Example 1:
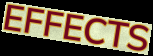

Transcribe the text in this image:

EFFECTS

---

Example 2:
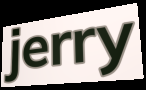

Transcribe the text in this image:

jerry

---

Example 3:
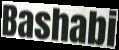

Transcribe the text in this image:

Bashabi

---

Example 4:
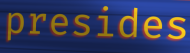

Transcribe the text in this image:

presides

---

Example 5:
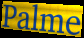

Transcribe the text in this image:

Palme